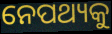
ନେପଥ୍ୟକୁ